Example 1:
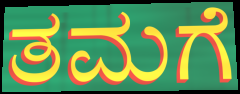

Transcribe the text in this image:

ತಮಗೆ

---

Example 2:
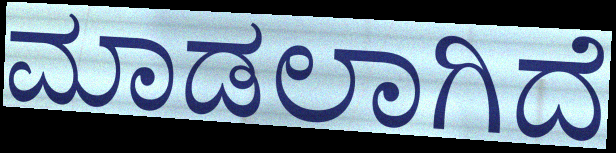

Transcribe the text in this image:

ಮಾಡಲಾಗಿದೆ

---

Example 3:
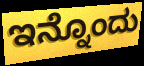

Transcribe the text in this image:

ಇನ್ನೊಂದು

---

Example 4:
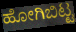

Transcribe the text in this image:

ಹೋಗಿಬಿಟ್ಟ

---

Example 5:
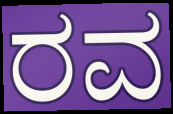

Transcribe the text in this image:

ರವ